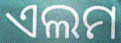
ଏଲମ